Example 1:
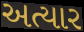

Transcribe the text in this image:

અત્યાર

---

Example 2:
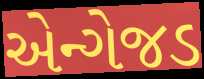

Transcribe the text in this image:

એન્ગેજડ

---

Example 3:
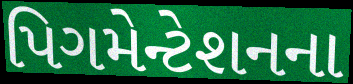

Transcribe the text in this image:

પિગમેન્ટેશનના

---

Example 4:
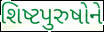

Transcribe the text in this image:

શિષ્ટપુરુષોને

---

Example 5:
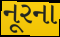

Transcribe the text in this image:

નૂરના